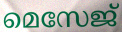
മെസേജ്